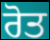
ਰੋਤ